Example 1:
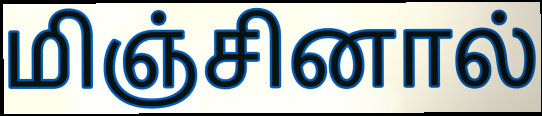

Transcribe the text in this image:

மிஞ்சினால்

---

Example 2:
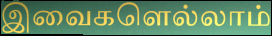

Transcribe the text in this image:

இவைகளெல்லாம்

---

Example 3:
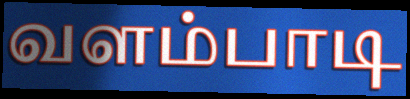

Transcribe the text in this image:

வளம்பாடி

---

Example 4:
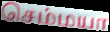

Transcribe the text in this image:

செம்மயா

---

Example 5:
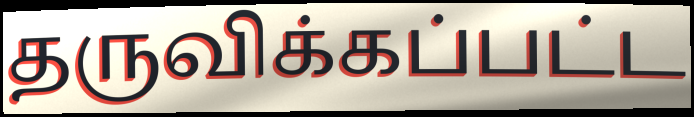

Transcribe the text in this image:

தருவிக்கப்பட்ட